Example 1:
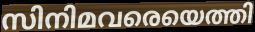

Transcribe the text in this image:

സിനിമവരെയെത്തി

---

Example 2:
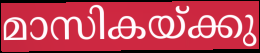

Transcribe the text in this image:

മാസികയ്ക്കു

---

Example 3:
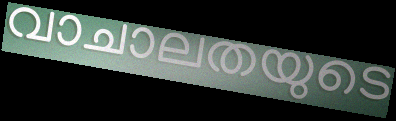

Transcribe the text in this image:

വാചാലതയുടെ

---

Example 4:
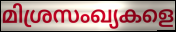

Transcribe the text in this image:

മിശ്രസംഖ്യകളെ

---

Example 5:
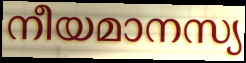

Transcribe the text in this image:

നീയമാനസ്യ